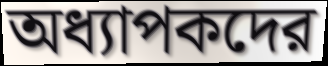
অধ্যাপকদের